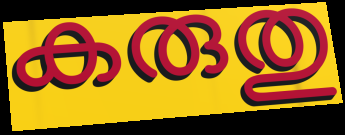
കരുതു